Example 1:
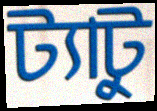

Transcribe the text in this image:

ট্যাটু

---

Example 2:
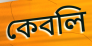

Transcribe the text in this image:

কেবলি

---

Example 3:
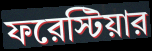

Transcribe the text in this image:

ফরেস্টিয়ার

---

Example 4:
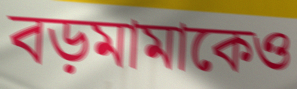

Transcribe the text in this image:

বড়মামাকেও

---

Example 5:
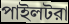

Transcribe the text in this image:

পাইলটরা